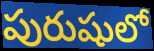
పురుషులో